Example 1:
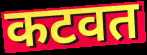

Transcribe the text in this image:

कटवत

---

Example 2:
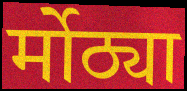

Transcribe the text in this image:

र्मोठ्या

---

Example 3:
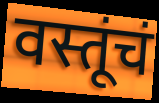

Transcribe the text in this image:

वस्तूंचं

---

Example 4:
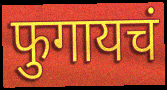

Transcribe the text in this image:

फुगायचं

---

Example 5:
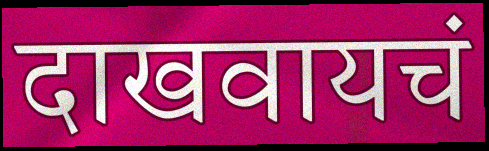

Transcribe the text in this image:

दाखवायचं